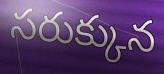
సరుక్కున